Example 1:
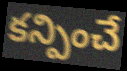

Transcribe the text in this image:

కన్పించే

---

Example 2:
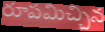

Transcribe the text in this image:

రూపమిచ్చిన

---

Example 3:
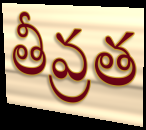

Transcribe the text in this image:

తీవ్రత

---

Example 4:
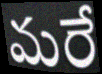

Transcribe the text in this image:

మరే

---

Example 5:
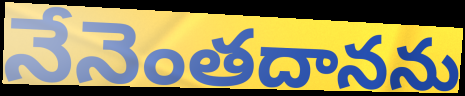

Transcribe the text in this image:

నేనెంతదానను